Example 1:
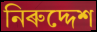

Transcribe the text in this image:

নিৰুদ্দেশ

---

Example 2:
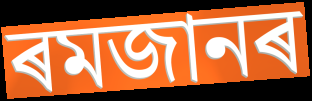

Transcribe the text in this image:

ৰমজানৰ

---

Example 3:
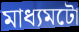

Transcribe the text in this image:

মাধ্যমটো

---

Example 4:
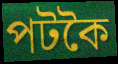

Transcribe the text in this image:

পটকৈ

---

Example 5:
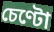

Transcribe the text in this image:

চেণ্টো